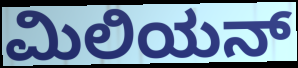
ಮಿಲಿಯನ್